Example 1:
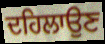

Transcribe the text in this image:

ਦਹਿਲਾਉਣ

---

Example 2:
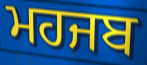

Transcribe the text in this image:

ਮਹਜਬ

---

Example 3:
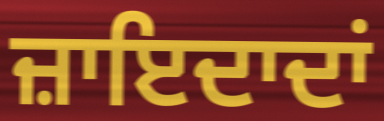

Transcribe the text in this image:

ਜ਼ਾਇਦਾਦਾਂ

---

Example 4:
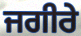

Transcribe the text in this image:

ਜਗੀਰੇ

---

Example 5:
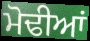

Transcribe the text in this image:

ਮੋਢੀਆਂ